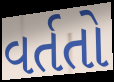
વર્તતો